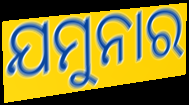
ଯମୁନାର